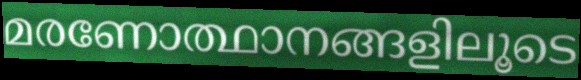
മരണോത്ഥാനങ്ങളിലൂടെ